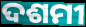
ଦଶମୀ